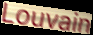
Louvain